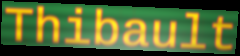
Thibault